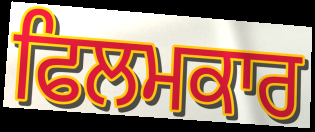
ਫਿਲਮਕਾਰ